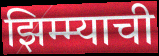
झिम्म्याची